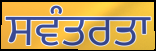
ਸਵੰਤਰਤਾ